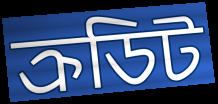
ক্রডিট